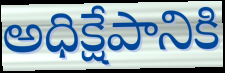
అధిక్షేపానికి